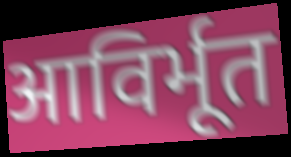
आविर्भूत